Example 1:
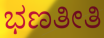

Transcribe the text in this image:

ಭಣತೀತಿ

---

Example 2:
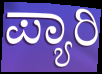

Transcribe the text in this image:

ಪ್ಯಾರಿ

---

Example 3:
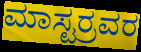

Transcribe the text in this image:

ಮಾಸ್ಟರ್ರವರ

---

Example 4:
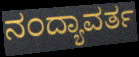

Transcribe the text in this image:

ನಂದ್ಯಾವರ್ತ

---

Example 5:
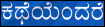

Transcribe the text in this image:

ಕಥೆಯೆಂದರೆ